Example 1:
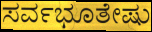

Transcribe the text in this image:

ಸರ್ವಭೂತೇಷು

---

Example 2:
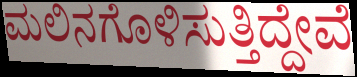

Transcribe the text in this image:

ಮಲಿನಗೊಳಿಸುತ್ತಿದ್ದೇವೆ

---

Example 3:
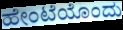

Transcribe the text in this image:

ಹೇಂಟೆಯೊಂದು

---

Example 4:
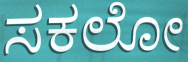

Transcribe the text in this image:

ಸಕಲೋ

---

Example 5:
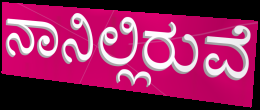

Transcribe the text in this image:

ನಾನಿಲ್ಲಿರುವೆ